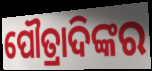
ପୌତ୍ରାଦିଙ୍କର